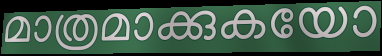
മാത്രമാക്കുകയോ